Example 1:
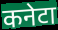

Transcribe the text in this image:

कनेटा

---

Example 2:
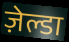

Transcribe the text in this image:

ज़ेल्डा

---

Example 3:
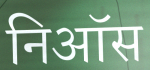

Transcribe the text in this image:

निऑस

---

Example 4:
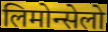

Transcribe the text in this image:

लिमोन्सेलो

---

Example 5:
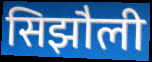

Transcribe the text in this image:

सिझौली